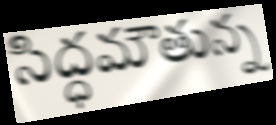
సిద్ధమౌతున్న